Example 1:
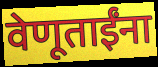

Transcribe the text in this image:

वेणूताईंना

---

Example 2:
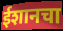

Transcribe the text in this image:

ईशानचा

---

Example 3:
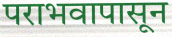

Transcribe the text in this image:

पराभवापासून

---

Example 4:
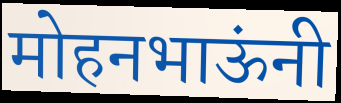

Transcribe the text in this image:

मोहनभाऊंनी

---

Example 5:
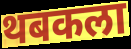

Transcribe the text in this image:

थबकला